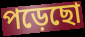
পড়েছো